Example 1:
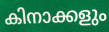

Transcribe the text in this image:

കിനാക്കളും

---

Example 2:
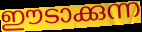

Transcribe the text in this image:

ഈടാക്കുന്ന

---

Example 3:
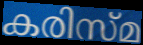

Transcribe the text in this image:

കരിസ്മ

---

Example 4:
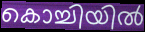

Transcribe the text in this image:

കൊച്ചിയിൽ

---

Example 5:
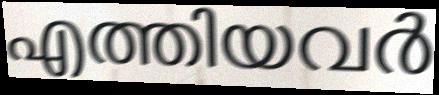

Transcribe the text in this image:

എത്തിയവർ